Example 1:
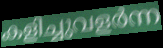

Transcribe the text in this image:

കളിച്ചുവളർന്ന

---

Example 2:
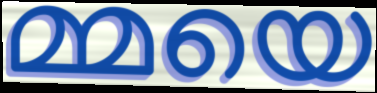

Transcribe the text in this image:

മ്മയെ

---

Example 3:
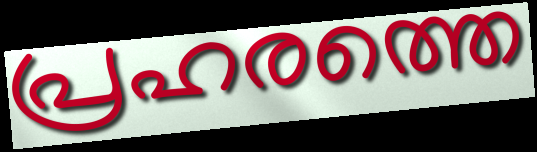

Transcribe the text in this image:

പ്രഹരത്തെ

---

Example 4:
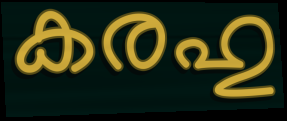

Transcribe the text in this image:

കരഹു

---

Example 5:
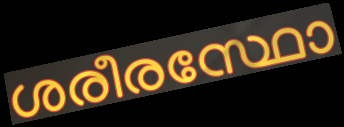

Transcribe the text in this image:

ശരീരസ്ഥോ